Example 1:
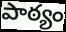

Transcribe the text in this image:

పాఠ్యం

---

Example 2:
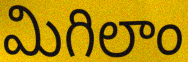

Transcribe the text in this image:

మిగిలాం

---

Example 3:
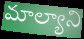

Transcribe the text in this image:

మాల్యాని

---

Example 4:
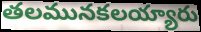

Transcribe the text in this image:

తలమునకలయ్యారు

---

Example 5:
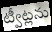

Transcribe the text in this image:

ట్వీట్లను